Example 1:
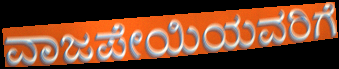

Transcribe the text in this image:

ವಾಜಪೇಯಿಯವರಿಗೆ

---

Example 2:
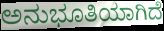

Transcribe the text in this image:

ಅನುಭೂತಿಯಾಗಿದೆ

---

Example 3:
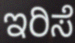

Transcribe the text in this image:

ಇರಿಸೆ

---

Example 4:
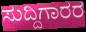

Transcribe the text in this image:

ಸುದ್ದಿಗಾರರ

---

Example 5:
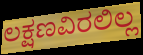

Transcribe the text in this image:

ಲಕ್ಷಣವಿರಲಿಲ್ಲ